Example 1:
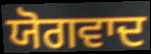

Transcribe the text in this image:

ਯੋਗਵਾਦ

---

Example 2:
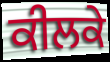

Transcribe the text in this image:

ਕੀਲਕੇ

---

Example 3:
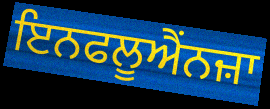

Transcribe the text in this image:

ਇਨਫਲੂਐਂਨਜ਼ਾ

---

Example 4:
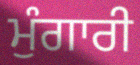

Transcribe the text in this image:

ਮੁੰਗਾਰੀ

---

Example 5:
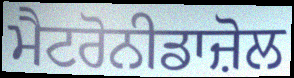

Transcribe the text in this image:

ਮੈਟਰੋਨੀਡਾਜ਼ੋਲ